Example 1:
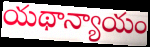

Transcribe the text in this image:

యథాన్యాయం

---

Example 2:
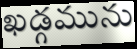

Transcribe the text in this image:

ఖడ్గమును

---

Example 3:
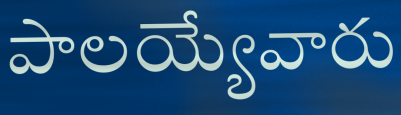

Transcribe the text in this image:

పాలయ్యేవారు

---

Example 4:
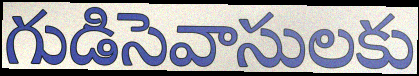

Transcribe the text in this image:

గుడిసెవాసులకు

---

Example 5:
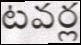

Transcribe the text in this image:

టవర్ల